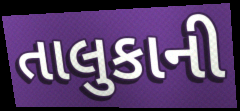
તાલુકાની